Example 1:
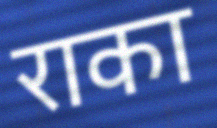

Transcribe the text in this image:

राका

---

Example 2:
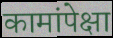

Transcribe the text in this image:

कामांपेक्षा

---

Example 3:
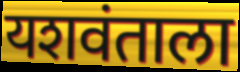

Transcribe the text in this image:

यशवंताला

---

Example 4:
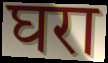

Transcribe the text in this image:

घरा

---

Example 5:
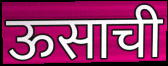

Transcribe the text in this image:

ऊसाची